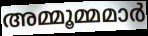
അമ്മൂമ്മമാർ